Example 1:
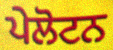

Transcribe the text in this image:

ਪੇਲੋਟਨ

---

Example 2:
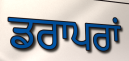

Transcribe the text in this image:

ਡਰਾਪਰਾਂ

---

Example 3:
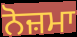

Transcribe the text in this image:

ਨੋਜ਼ਮਾ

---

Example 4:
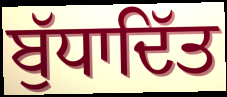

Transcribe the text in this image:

ਬੁੱਧਾਦਿੱਤ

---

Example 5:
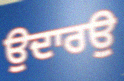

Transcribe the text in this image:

ਉਦਾਰਉ